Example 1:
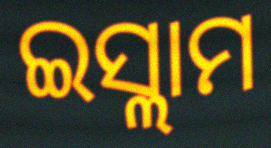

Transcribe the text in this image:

ଇସ୍ଲାମ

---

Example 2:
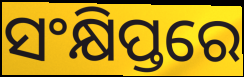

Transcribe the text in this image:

ସଂକ୍ଷିପ୍ତରେ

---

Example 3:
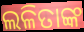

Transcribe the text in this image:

ଲଳିତାଙ୍କ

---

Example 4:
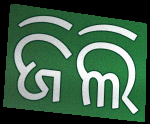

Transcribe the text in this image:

ଜିଲି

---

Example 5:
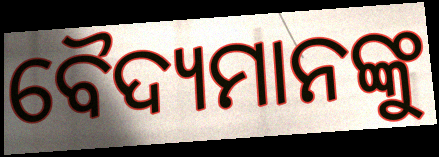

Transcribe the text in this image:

ବୈଦ୍ୟମାନଙ୍କୁ